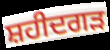
ਸ਼ਹੀਦਗੜ